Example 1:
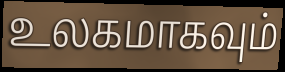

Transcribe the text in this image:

உலகமாகவும்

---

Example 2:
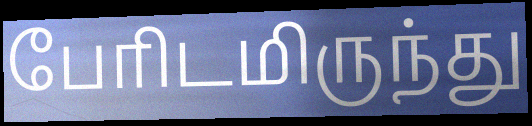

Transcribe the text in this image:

பேரிடமிருந்து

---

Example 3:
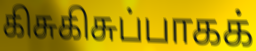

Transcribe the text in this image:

கிசுகிசுப்பாகக்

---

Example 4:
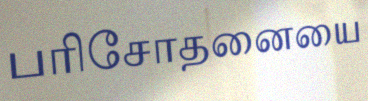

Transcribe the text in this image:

பரிசோதனையை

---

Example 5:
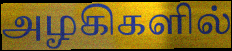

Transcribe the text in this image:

அழகிகளில்